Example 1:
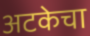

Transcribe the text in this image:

अटकेचा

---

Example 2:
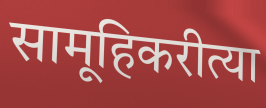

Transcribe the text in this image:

सामूहिकरीत्या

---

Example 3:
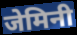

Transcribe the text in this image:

जेमिनी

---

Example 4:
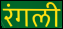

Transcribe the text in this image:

रंगली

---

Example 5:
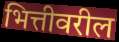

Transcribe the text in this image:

भित्तीवरील